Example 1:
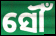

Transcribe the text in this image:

ସୌଁ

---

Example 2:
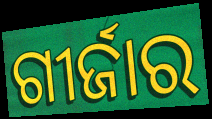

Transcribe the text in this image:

ଗୀର୍ଜାର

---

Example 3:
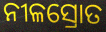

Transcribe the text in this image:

ନୀଳସ୍ରୋତ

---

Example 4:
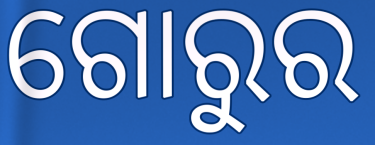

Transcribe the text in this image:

ଗୋରୁର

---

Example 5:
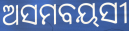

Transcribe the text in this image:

ଅସମବୟସୀ